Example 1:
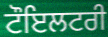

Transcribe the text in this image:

ਟੌਇਲਟਰੀ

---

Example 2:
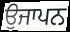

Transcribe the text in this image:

ਉਜਾਪਨ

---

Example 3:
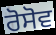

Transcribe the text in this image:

ਰੋਸੋਵ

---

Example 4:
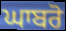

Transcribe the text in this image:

ਘਾਬਰੋ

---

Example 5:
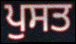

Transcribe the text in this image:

ਪੁਸਤ